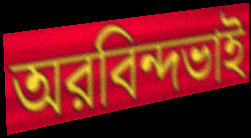
অরবিন্দভাই